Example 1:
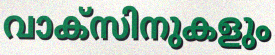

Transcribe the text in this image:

വാക്സിനുകളും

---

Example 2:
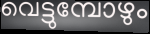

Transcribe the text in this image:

വെട്ടുമ്പോഴും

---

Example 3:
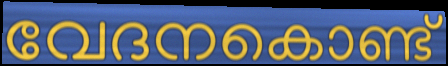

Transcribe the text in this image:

വേദനകൊണ്ട്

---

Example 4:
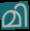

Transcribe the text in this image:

മി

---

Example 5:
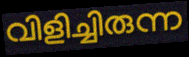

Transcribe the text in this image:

വിളിച്ചിരുന്ന